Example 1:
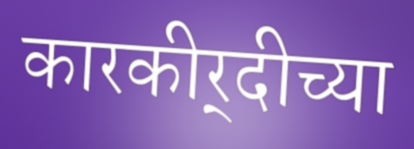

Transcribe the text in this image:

कारकीर्दीच्या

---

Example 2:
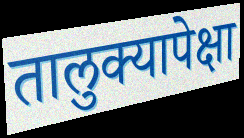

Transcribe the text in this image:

तालुक्यापेक्षा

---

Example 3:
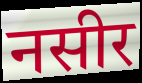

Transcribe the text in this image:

नसीर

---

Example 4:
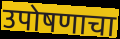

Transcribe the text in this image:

उपोषणाचा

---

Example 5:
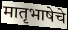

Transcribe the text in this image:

मातृभाषेचे